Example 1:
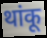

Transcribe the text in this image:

थांकू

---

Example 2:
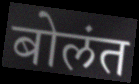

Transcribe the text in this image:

बोलंत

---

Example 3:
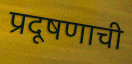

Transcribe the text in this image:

प्रदूषणाची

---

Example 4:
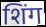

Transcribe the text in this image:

शिंग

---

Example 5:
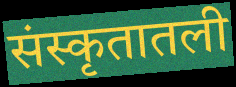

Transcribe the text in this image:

संस्कृतातली